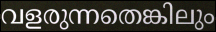
വളരുന്നതെങ്കിലും